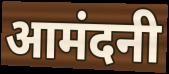
आमंदनी